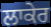
ਲਾਕੇਰ